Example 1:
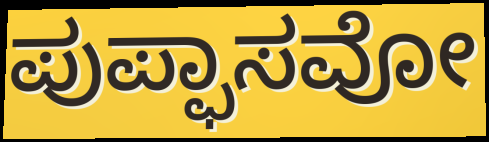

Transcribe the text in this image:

ಪುಪ್ಫಾಸವೋ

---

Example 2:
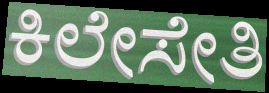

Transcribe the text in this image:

ಕಿಲೇಸೇತಿ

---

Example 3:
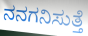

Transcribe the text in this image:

ನನಗನಿಸುತ್ತೆ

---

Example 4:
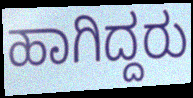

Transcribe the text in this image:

ಹಾಗಿದ್ದರು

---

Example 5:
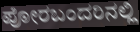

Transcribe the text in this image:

ಪೋರಬಂದರಿನಲ್ಲಿ